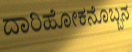
ದಾರಿಹೋಕನೊಬ್ಬನ